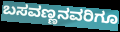
ಬಸವಣ್ಣನವರಿಗೂ